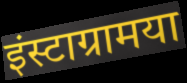
इंस्टाग्रामया